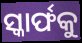
ସ୍କାର୍ଫକୁ